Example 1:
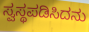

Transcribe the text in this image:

ಸ್ವಸ್ಥಪಡಿಸಿದನು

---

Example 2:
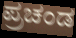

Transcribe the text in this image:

ಪ್ರಚಂಡ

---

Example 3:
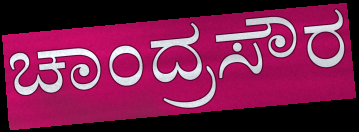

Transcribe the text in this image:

ಚಾಂದ್ರಸೌರ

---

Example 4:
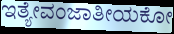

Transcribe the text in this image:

ಇತ್ಯೇವಂಜಾತೀಯಕೋ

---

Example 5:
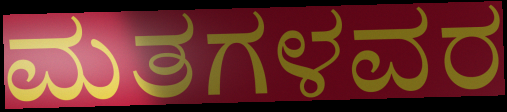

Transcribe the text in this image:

ಮತಗಳವರ